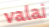
valai